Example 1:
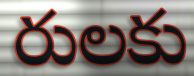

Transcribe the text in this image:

రులకు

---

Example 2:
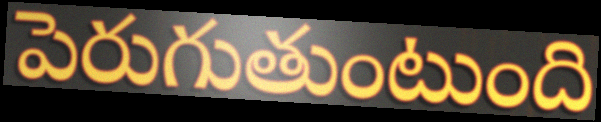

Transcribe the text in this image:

పెరుగుతుంటుంది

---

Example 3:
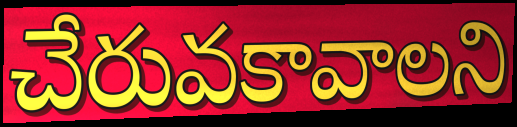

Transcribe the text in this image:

చేరువకావాలని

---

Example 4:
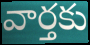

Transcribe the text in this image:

వార్తకు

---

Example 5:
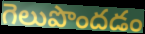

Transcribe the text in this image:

గెలుపొందడం